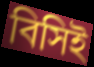
বিসিই